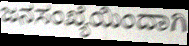
ಜನಸಂಖ್ಯೆಯಿಂದಾಗಿ